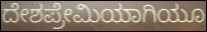
ದೇಶಪ್ರೇಮಿಯಾಗಿಯೂ